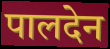
पालदेन